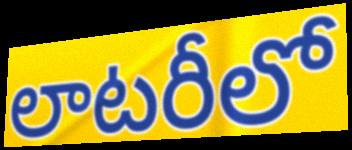
లాటరీలో